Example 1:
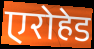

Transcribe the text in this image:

एरोहेड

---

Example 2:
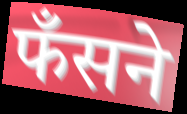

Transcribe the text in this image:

फँसने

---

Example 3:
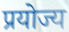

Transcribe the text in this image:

प्रयोज्य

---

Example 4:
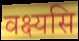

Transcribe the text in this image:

वक्ष्यसि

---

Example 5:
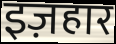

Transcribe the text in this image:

इज़हार